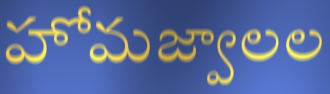
హోమజ్వాలల